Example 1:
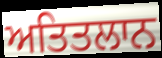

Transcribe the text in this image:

ਅਤਿਤਲਾਨ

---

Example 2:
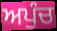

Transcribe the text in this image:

ਅਪੁੰਚ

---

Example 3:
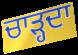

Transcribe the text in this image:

ਚਾੜ੍ਹਦਾ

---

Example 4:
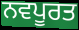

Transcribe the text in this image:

ਨਵਪੂਰਤ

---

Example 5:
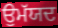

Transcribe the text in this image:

ਉਮੱਯਦ